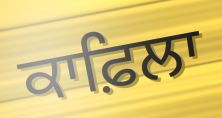
ਕਾਫ਼ਿਲਾ